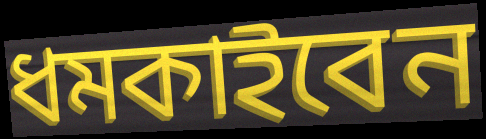
ধমকাইবেন